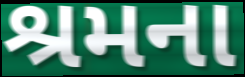
શ્રમના